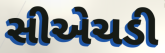
સીએચડી